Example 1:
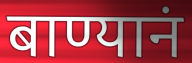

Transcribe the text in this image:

बाण्यानं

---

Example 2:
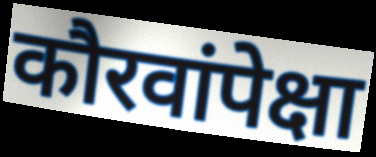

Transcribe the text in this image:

कौरवांपेक्षा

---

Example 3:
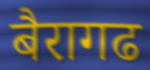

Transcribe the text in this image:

बैरागढ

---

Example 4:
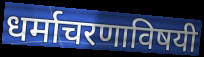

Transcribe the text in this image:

धर्माचरणाविषयी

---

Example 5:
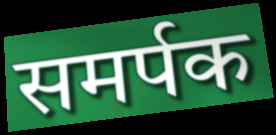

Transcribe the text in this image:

समर्पक